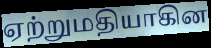
ஏற்றுமதியாகின